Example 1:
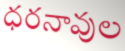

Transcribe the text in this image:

ధరనావుల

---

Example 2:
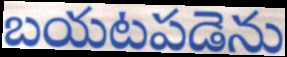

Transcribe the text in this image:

బయటపడెను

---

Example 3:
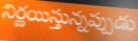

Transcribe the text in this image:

నిర్ణయిస్తున్నప్పుడు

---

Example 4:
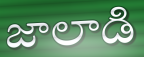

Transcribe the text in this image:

జాలాడి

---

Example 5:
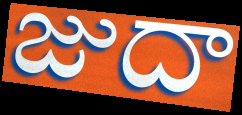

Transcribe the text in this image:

జుదా